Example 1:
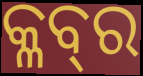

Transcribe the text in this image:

କ୍ଳବ୍‍ର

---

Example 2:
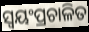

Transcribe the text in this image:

ସ୍ୱୟଂପ୍ରଚାଳିତ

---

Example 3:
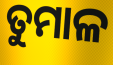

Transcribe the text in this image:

ତୁମାଳ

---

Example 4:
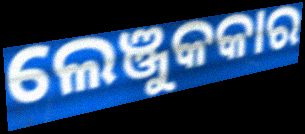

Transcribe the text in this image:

ଲେଞ୍ଜୁକକାର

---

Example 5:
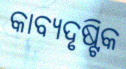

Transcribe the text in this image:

କାବ୍ୟଦୃଷ୍ଟିକ